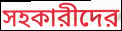
সহকারীদের